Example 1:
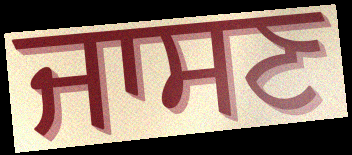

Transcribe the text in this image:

ਜਾਸਣ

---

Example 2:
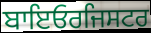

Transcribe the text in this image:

ਬਾਇਓਰਜਿਸਟਰ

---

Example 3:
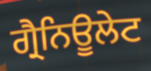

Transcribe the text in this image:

ਗ੍ਰੈਨਿਊਲੇਟ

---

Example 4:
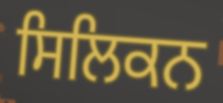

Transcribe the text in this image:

ਸਿਲਿਕਨ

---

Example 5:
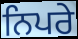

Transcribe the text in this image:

ਨਿਪਰੇ